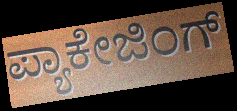
ಪ್ಯಾಕೇಜಿಂಗ್